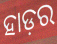
ହାଡ଼ର